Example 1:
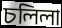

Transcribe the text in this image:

চলিলা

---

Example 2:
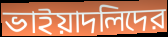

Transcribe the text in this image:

ভাইয়াদলিদের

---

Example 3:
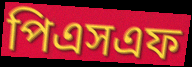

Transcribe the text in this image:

পিএসএফ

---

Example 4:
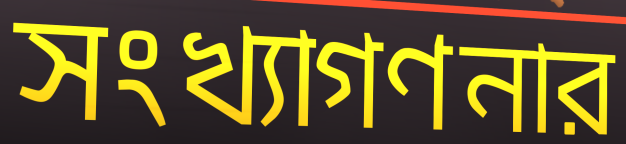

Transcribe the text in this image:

সংখ্যাগণনার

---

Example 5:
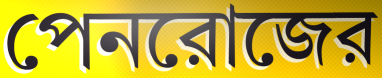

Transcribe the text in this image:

পেনরোজের